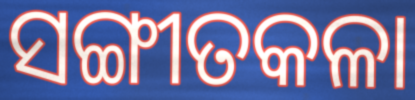
ସଙ୍ଗୀତକଳା